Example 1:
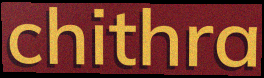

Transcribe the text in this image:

chithra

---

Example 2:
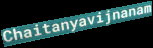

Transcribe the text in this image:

Chaitanyavijnanam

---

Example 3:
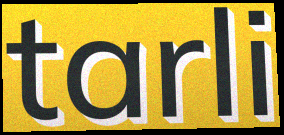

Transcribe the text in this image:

tarli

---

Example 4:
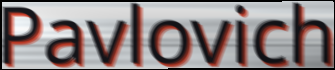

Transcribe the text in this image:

Pavlovich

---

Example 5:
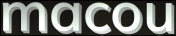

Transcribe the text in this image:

macou